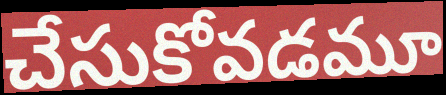
చేసుకోవడమూ